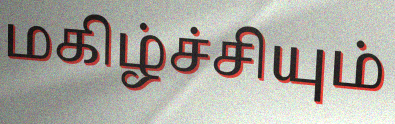
மகிழ்ச்சியும்